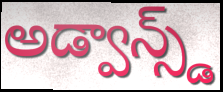
అడ్వాన్స్డ్